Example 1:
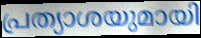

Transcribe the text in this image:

പ്രത്യാശയുമായി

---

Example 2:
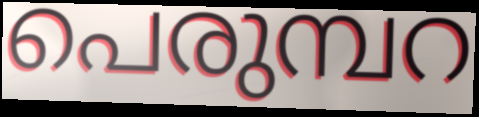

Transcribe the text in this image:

പെരുമ്പറ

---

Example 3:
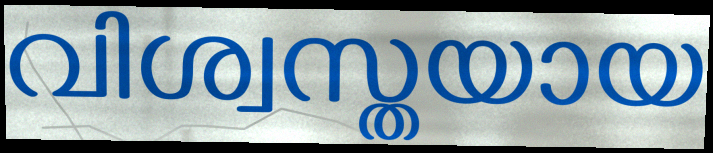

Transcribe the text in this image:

വിശ്വസ്തയായ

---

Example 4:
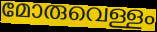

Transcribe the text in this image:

മോരുവെള്ളം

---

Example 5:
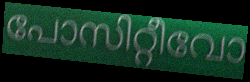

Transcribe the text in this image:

പോസിറ്റീവോ